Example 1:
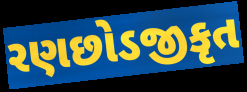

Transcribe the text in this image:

રણછોડજીકૃત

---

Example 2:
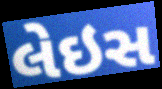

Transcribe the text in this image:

લેઇસ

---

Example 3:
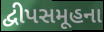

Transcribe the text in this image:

દ્વીપસમૂહના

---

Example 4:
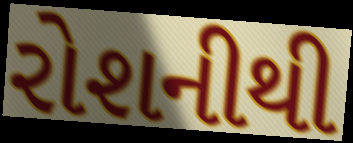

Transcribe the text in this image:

રોશનીથી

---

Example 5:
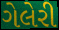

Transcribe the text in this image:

ગેલેરી